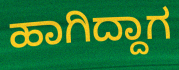
ಹಾಗಿದ್ದಾಗ